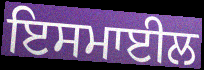
ਇਸਮਾਈਲ